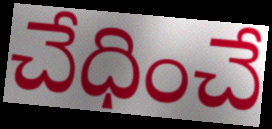
చేధించే